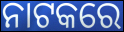
ନାଟକରେ